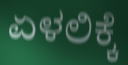
ಏಳಲಿಕ್ಕೆ